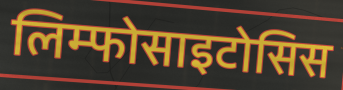
लिम्फोसाइटोसिस